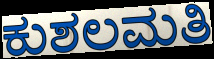
ಕುಶಲಮತಿ